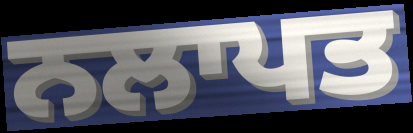
ਨਲਾਪਤ